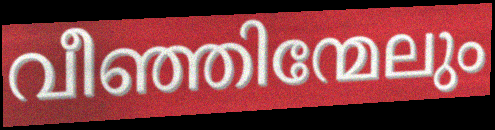
വീഞ്ഞിന്മേലും